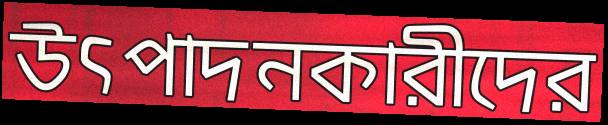
উৎপাদনকারীদের